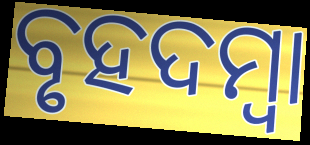
ବୃହଦମ୍ବା